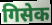
गिसेक